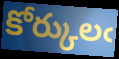
కోర్కులఁ